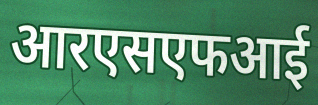
आरएसएफआई